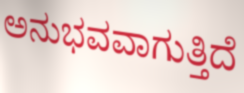
ಅನುಭವವಾಗುತ್ತಿದೆ